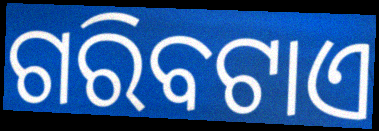
ଗରିବଟାଏ